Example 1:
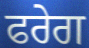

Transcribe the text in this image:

ਫਰੇਗ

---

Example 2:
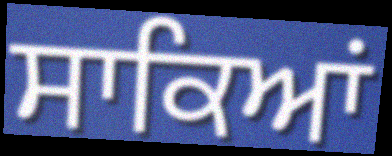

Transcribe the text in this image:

ਸਾਕਿਆਂ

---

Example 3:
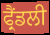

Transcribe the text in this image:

ਫ੍ਰੈਂਡਲੀ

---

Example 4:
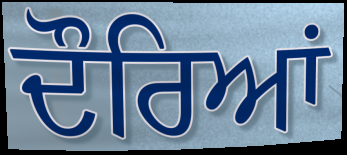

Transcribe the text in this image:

ਦੌਰਿਆਂ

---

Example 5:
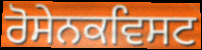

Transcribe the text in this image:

ਰੋਸੇਨਕਵਿਸਟ